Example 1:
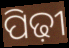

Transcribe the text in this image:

ପିଢ଼ୀ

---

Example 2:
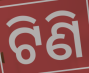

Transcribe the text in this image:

ଟିଣି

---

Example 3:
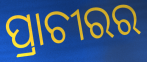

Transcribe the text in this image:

ପ୍ରାଚୀରର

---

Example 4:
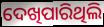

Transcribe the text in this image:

ଦେଖିପାରିଥିଲି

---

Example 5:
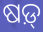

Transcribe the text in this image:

ଷଡ଼୍